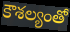
కౌశల్యంతో